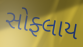
સોફ્લાય